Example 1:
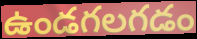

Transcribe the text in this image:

ఉండగలగడం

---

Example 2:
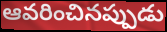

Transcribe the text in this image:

ఆవరించినప్పుడు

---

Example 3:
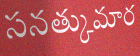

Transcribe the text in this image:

సనత్కుమార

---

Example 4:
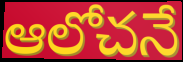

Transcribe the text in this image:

ఆలోచనే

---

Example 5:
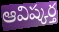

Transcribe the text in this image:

ఆవిష్కర్త